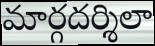
మార్గదర్శిలా